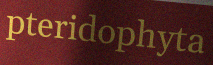
pteridophyta